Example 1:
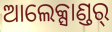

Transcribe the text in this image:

ଆଲେକ୍ସାଣ୍ଡର୍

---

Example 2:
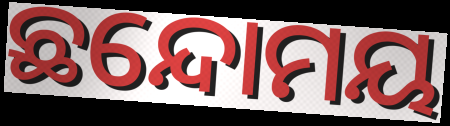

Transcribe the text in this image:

ଛନ୍ଦୋମୟ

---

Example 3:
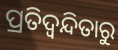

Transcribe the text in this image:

ପ୍ରତିଦ୍ୱନ୍ଦିତାରୁ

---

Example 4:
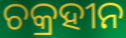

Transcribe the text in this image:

ଚକ୍ରହୀନ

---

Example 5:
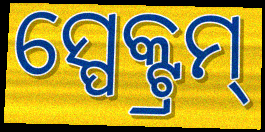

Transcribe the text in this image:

ସ୍ପେକ୍ଟ୍ରମ୍